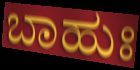
ಬಾಹುಃ